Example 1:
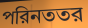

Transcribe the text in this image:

পরিনততর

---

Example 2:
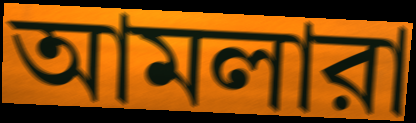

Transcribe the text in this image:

আমলারা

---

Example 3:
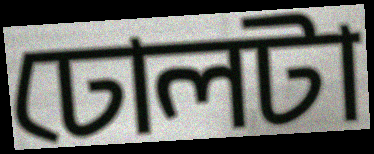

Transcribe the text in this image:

ঢোলটা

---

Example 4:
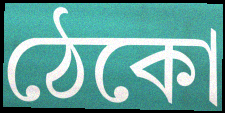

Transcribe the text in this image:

ঠেকো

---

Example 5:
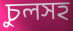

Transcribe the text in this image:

চুলসহ